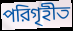
পরিগৃহীত